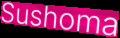
Sushoma